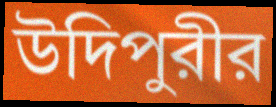
উদিপুরীর